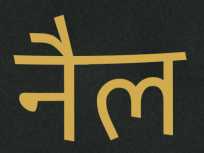
नैल